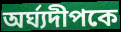
অর্ঘ্যদীপকে